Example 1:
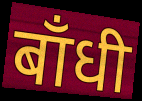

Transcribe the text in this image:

बाँधी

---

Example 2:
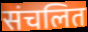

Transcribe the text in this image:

संचलित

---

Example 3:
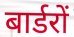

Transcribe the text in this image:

बार्डरों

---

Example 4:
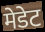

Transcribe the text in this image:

मेडेट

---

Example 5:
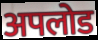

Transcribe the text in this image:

अपलोड